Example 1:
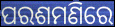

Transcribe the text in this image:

ପରଶମଣିରେ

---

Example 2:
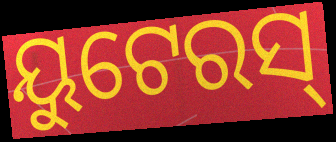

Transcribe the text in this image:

ୟୁଟେରସ୍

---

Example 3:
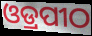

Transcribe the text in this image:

ଓଡ୍ରପୀଠ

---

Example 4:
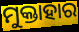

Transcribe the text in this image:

ମୁକ୍ତାହାର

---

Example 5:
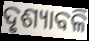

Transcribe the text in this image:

ଦୃଶ୍ୟାବଳି